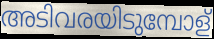
അടിവരയിടുമ്പോള്